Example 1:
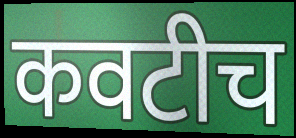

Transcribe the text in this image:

कवटीच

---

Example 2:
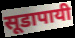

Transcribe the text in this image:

सूडापायी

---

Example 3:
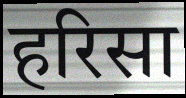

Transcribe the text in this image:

हरिसा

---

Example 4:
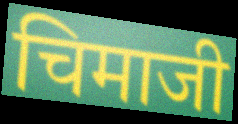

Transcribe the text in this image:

चिमाजी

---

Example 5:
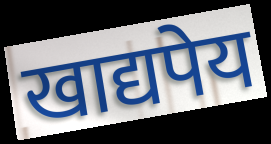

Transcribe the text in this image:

खाद्यपेय